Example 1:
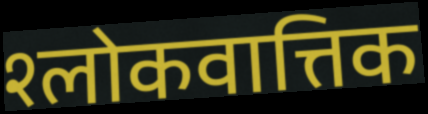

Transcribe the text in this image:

श्लोकवात्तिक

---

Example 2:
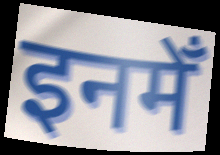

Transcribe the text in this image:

इनमेँ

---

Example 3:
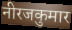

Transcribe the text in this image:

नीरजकुमार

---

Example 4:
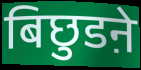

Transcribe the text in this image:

बिछुडऩे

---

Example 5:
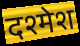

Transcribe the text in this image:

दश्मेश